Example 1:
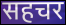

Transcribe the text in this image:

सहचर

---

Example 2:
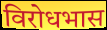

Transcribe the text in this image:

विरोधभास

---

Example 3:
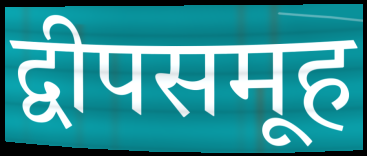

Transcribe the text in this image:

द्वीपसमूह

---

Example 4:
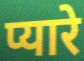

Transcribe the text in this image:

प्यारे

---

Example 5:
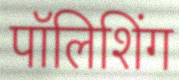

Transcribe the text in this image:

पॉलिशिंग